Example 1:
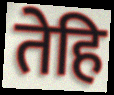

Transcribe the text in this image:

तेहि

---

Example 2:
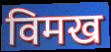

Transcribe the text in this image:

विमख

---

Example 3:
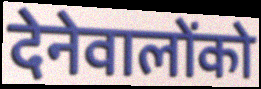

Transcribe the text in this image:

देनेवालोंको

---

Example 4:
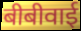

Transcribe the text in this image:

बीबीवाई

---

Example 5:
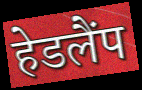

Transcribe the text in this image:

हेडलैंप